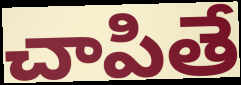
చాపితే